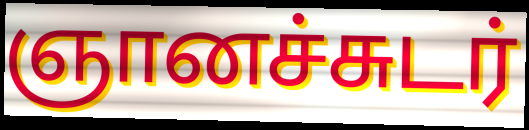
ஞானச்சுடர்